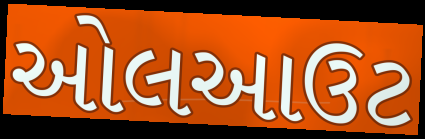
ઓલઆઉટ